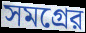
সমগ্রের